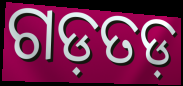
ଗଡ଼ତଡ଼